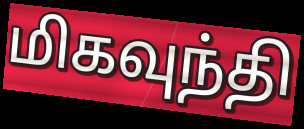
மிகவுந்தி